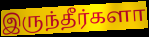
இருந்தீர்களா